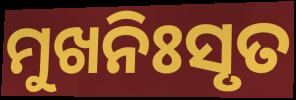
ମୁଖନିଃସୃତ